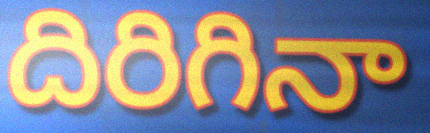
దిరిగినా